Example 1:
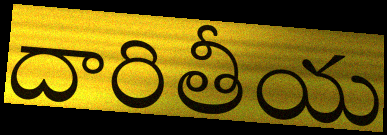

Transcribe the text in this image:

దారితీయ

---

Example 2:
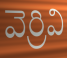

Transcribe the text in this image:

వెర్రివి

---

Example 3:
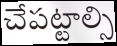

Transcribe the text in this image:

చేపట్టాల్సి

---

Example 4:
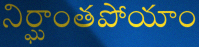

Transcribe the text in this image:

నిర్ఘాంతపోయాం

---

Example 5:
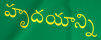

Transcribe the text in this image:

హృదయాన్ని